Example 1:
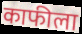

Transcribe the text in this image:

काफीला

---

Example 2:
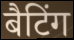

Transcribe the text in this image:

बैटिंग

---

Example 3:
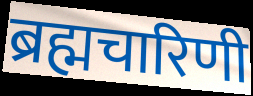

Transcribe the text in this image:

ब्रह्मचारिणी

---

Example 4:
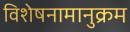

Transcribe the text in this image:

विशेषनामानुक्रम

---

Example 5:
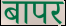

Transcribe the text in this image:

बापर